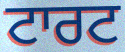
ਟਾਰਟ